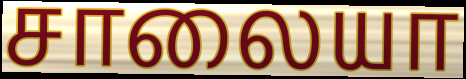
சாலையா